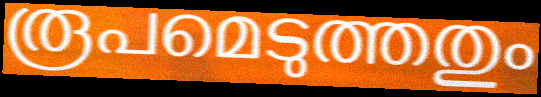
രൂപമെടുത്തതും